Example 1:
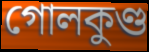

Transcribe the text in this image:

গোলকুণ্ড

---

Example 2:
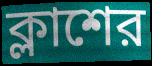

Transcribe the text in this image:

ক্লাশের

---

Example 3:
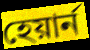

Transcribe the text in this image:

হেয়ার্ন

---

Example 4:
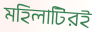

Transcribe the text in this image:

মহিলাটিরই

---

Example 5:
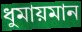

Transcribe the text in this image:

ধুমায়মান